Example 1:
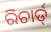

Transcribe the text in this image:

ରିଚାର୍ଡ୍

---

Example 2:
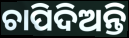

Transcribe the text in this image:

ଚାପିଦିଅନ୍ତି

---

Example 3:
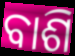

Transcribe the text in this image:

ବାଶି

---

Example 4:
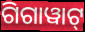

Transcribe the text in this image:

ଗିଗାୱାଟ୍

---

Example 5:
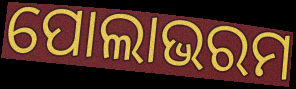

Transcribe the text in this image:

ପୋଲାଭରମ